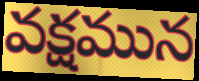
వక్షమున